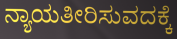
ನ್ಯಾಯತೀರಿಸುವದಕ್ಕೆ